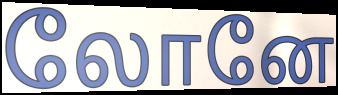
லோனே